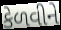
કેળવીને